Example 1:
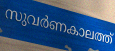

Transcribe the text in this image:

സുവർണകാലത്ത്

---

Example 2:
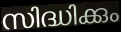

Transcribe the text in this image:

സിദ്ധിക്കും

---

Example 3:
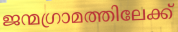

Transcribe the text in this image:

ജന്മഗ്രാമത്തിലേക്ക്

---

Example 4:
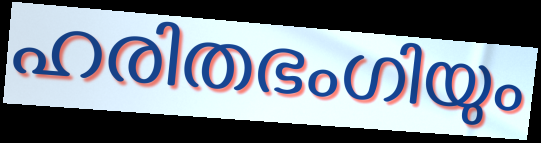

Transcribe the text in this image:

ഹരിതഭംഗിയും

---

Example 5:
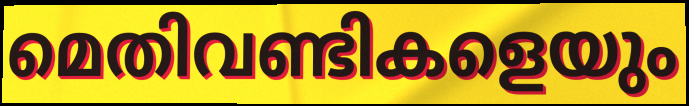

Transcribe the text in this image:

മെതിവണ്ടികളെയും